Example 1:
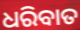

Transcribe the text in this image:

ଧରିବାତ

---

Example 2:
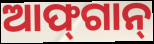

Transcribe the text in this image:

ଆଫ୍‌ଗାନ୍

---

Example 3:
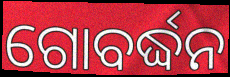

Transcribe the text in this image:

ଗୋବର୍ଦ୍ଧନ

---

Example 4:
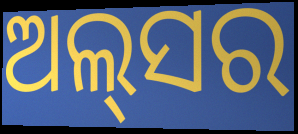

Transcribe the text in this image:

ଅଲ୍‌ସର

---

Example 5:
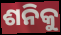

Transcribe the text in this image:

ଶନିକୁ